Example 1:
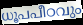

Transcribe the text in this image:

ധൂപപീഠവും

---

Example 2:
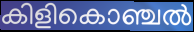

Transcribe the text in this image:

കിളികൊഞ്ചൽ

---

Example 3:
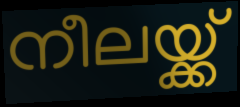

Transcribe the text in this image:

നീലയ്ക്ക്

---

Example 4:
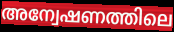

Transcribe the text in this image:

അന്വേഷണത്തിലെ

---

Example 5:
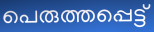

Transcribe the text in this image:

പെരുത്തപ്പെട്ട്